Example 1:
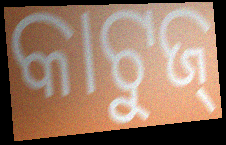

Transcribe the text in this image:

କାଟୁଜ୍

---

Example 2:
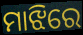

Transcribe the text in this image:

ମାଝିରେ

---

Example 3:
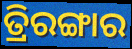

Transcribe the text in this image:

ତ୍ରିରଙ୍ଗାର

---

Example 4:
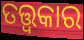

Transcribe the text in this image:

ତତ୍ତ୍ୱକାର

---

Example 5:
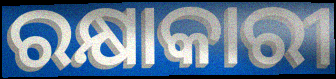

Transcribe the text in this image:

ରକ୍ଷାକାରୀ